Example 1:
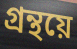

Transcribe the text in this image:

গ্ৰন্থয়ে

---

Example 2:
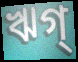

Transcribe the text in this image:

ঋগ্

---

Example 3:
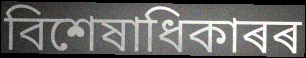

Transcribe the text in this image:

বিশেষাধিকাৰৰ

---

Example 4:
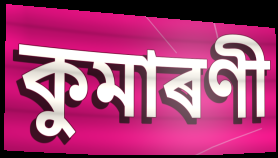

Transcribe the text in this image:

কুমাৰণী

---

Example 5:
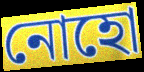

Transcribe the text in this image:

নোহো